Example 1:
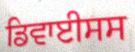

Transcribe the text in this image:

ਡਿਵਾਈਸਸ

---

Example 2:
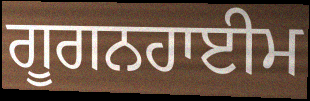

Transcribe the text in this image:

ਗੂਗਨਹਾਈਮ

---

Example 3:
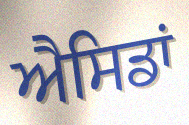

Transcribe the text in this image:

ਐਸਿਡਾਂ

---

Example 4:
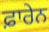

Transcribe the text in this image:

ਫ਼ਾਰੇਨ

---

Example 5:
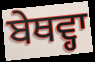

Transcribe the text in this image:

ਬੇਥਵ੍ਹਾ